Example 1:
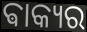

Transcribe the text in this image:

ଵାକ୍ଯର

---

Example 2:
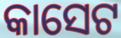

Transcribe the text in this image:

କାସେଟ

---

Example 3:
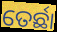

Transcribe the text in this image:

ତେର୍ଛା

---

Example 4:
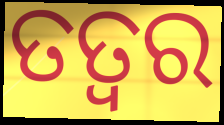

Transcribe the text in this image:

ତତ୍ଵର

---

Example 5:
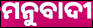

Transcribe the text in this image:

ମନୁବାଦୀ